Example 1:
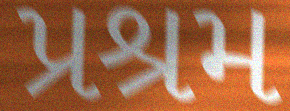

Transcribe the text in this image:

પ્રશ્રમ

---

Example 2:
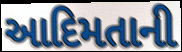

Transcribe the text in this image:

આદિમતાની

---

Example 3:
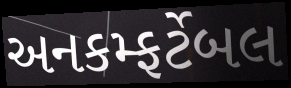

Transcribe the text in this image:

અનકમ્ફર્ટેબલ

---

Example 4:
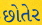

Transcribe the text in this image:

છોતેર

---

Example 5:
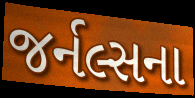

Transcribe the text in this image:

જર્નલ્સના